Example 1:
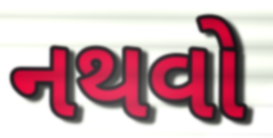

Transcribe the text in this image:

નથવો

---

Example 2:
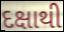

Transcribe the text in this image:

દક્ષાથી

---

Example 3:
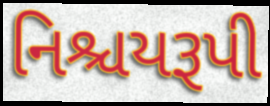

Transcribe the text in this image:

નિશ્ચયરૂપી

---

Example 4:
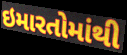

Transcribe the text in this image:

ઇમારતોમાંથી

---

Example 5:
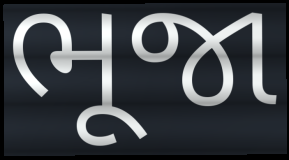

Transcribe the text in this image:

ભૂજા